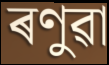
ৰণুৱা